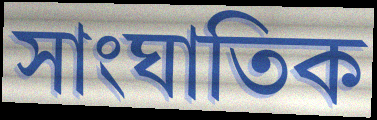
সাংঘাতিক